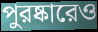
পুরষ্কারেও